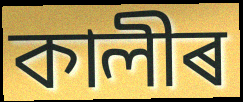
কালীৰ